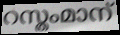
റസ്തംമാന്